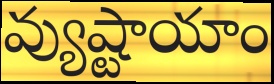
వ్యుష్టాయాం